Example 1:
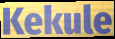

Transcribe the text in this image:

Kekule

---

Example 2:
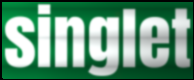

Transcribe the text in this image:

singlet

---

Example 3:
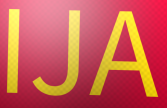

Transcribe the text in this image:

IJA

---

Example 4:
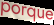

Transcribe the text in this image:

porque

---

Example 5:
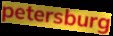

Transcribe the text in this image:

petersburg